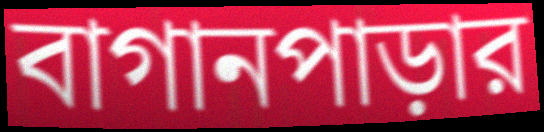
বাগানপাড়ার